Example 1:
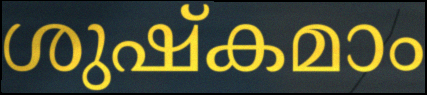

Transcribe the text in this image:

ശുഷ്കമാം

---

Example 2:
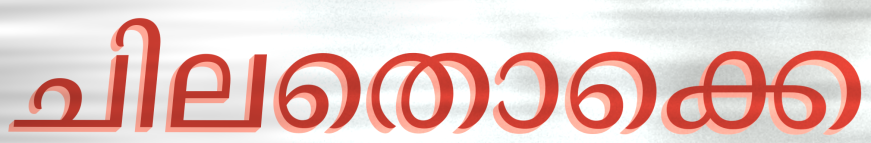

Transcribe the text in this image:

ചിലതൊക്കെ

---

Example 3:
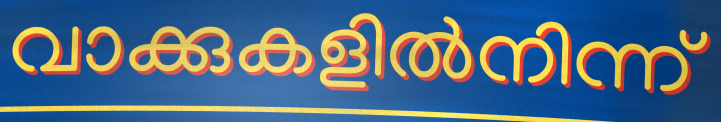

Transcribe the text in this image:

വാക്കുകളിൽനിന്ന്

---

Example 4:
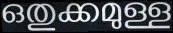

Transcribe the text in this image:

ഒതുക്കമുള്ള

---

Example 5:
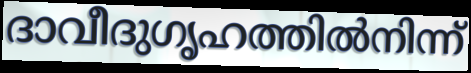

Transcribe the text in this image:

ദാവീദുഗൃഹത്തിൽനിന്ന്